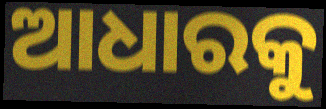
ଆଧାରକୁ